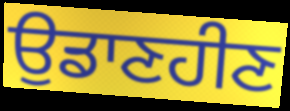
ਉਡਾਣਹੀਣ